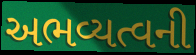
અભવ્યત્વની